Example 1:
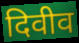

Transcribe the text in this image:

दिवीव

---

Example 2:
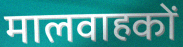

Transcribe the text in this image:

मालवाहकों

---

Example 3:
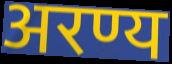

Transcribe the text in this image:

अरण्य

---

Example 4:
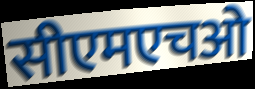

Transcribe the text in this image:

सीएमएचओ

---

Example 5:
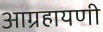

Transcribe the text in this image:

आग्रहायणी